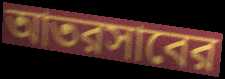
আতরসাবের